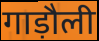
गाड़ौली